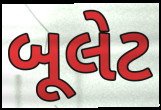
બૂલેટ